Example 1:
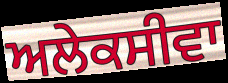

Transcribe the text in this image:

ਅਲੇਕਸੀਵਾ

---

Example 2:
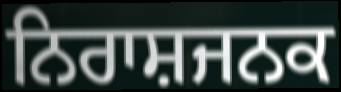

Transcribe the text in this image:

ਨਿਰਾਸ਼ਜਨਕ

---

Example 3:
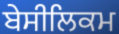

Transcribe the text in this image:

ਬੇਸੀਲਿਕਮ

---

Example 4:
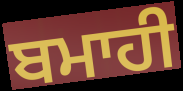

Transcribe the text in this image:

ਬਮਾਹੀ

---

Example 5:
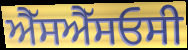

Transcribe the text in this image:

ਐੱਸਐੱਸਓਸੀ